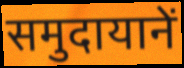
समुदायानें